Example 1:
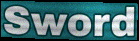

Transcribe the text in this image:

Sword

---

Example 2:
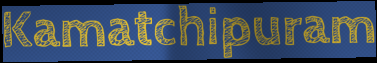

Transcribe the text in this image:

Kamatchipuram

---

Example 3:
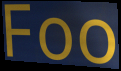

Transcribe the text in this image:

Foo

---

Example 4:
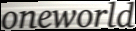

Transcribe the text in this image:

oneworld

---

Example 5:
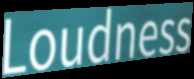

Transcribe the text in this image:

Loudness